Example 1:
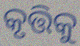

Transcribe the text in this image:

କୃତ୍ତିକୁ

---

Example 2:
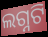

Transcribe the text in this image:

ଲଗ୍ନଟି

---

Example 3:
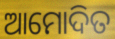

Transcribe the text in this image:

ଆମୋଦିତ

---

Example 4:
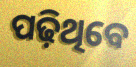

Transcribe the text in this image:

ପଢ଼ିଥିବେ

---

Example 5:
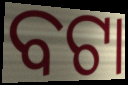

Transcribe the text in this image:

ବଟା